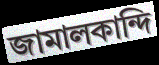
জামালকান্দি